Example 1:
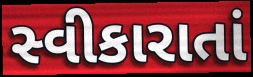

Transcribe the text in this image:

સ્વીકારાતાં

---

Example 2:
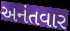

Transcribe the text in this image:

અનંતવાર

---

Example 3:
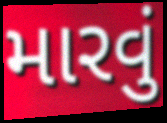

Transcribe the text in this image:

મારવું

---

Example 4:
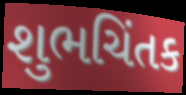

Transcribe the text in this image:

શુભચિંતક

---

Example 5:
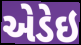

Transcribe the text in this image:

એડેઇ